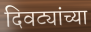
दिवट्यांच्या